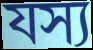
যস্য